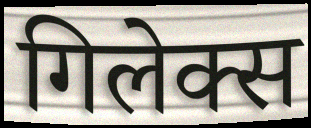
गिलेक्स